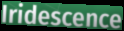
Iridescence